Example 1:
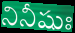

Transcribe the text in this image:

నినీషుః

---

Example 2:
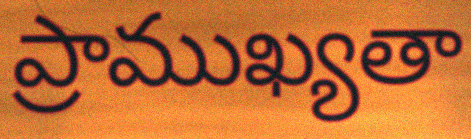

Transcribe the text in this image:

ప్రాముఖ్యతా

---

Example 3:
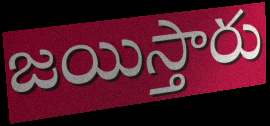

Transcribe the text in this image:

జయిస్తారు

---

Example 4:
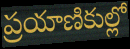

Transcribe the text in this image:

ప్రయాణికుల్లో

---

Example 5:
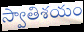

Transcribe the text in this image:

స్వాతిశయం